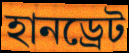
হানড্রেট